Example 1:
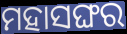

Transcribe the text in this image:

ମହାସଙ୍ଘର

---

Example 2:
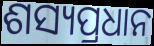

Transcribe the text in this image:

ଶସ୍ୟପ୍ରଧାନ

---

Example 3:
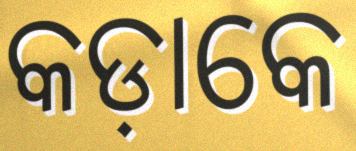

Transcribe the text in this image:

କଡ଼ାକେ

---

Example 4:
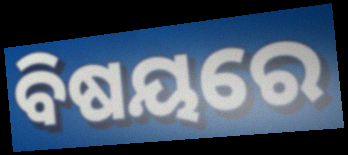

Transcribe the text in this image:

ବିଷୟରେ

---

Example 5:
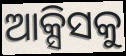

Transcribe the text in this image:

ଆକ୍ସିସକୁ